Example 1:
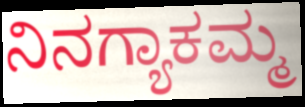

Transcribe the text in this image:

ನಿನಗ್ಯಾಕಮ್ಮ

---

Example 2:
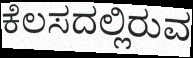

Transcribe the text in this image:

ಕೆಲಸದಲ್ಲಿರುವ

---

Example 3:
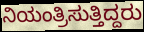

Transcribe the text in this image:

ನಿಯಂತ್ರಿಸುತ್ತಿದ್ದರು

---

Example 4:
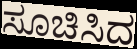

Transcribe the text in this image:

ಸೂಚಿಸಿದ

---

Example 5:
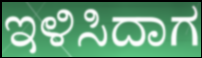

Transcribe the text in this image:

ಇಳಿಸಿದಾಗ